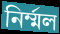
নির্ম্মল